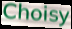
Choisy